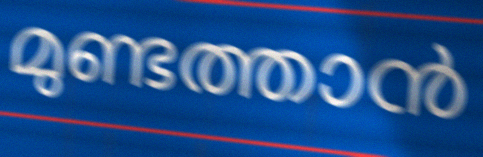
മുണ്ടത്താൻ